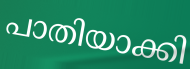
പാതിയാക്കി